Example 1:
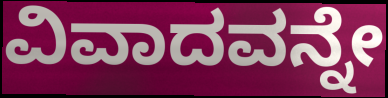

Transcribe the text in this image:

ವಿವಾದವನ್ನೇ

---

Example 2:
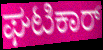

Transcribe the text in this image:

ಘಟಿಕಾರ್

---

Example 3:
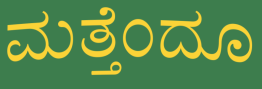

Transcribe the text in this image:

ಮತ್ತೆಂದೂ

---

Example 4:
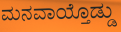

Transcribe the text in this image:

ಮನವಾಯ್ತೊಡ್ಡು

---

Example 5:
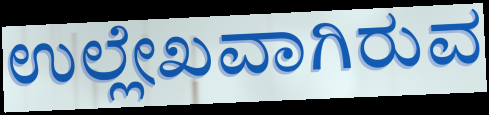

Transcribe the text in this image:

ಉಲ್ಲೇಖವಾಗಿರುವ